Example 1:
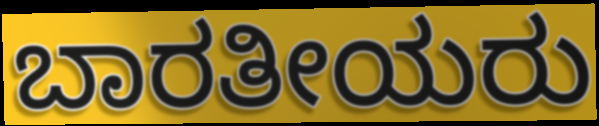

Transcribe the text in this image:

ಬಾರತೀಯರು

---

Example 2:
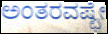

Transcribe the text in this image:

ಅಂತರವಷ್ಟೇ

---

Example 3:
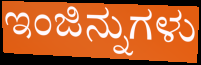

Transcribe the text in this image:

ಇಂಜಿನ್ನುಗಳು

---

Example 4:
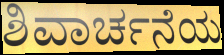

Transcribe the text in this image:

ಶಿವಾರ್ಚನೆಯ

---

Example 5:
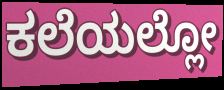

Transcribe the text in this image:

ಕಲೆಯಲ್ಲೋ